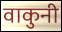
वाकुनी